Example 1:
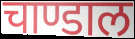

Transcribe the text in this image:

चाण्डाल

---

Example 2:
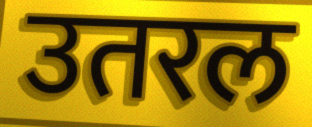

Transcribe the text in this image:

उतरल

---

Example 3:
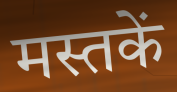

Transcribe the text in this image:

मस्तकें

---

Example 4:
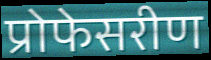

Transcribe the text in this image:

प्रोफेसरीण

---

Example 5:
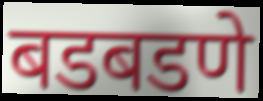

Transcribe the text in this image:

बडबडणे